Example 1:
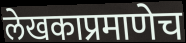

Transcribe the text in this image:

लेखकाप्रमाणेच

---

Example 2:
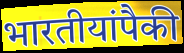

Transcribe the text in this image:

भारतीयांपैकी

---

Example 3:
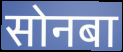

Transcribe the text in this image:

सोनबा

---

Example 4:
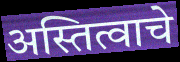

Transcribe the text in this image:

अस्तित्वाचे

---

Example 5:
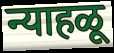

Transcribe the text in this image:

न्याहळू